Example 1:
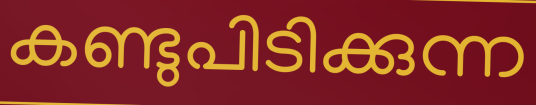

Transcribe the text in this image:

കണ്ടുപിടിക്കുന്ന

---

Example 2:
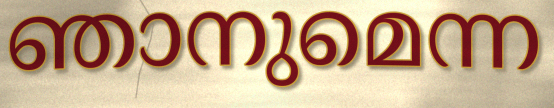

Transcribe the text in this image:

ഞാനുമെന്ന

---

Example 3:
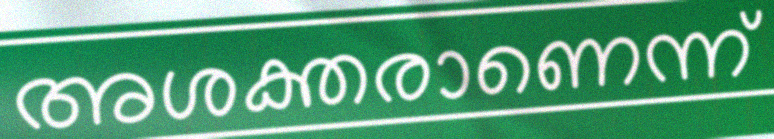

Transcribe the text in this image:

അശക്തരാണെന്ന്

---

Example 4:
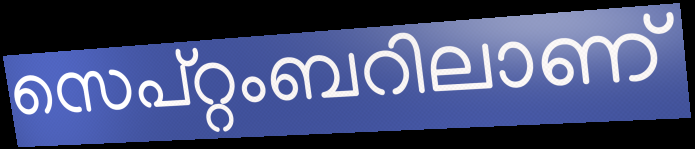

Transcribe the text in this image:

സെപ്റ്റംബറിലാണ്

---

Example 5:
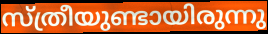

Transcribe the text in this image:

സ്ത്രീയുണ്ടായിരുന്നു